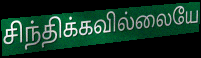
சிந்திக்கவில்லையே